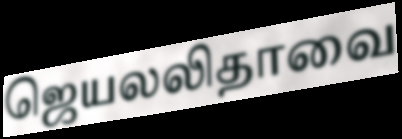
ஜெயலலிதாவை